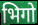
भिगो